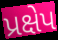
પ્રક્ષેપ